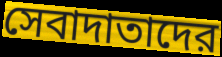
সেবাদাতাদের